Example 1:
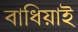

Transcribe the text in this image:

বাধিয়াই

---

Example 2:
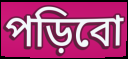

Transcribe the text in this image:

পড়িবো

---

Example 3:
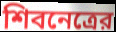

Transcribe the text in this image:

শিবনেত্রের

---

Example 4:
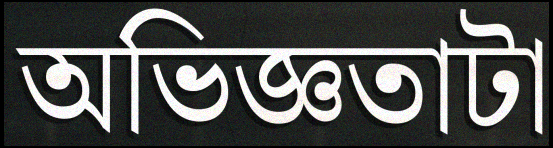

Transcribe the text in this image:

অভিজ্ঞতাটা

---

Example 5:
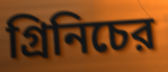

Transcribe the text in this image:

গ্রিনিচের